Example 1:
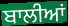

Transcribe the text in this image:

ਬਾਲੀਆਂ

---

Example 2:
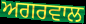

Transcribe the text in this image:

ਅਗਰਵਾਲ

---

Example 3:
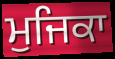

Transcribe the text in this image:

ਮੁਜਿਕਾ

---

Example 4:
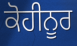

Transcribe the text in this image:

ਕੋਹੀਨੂਰ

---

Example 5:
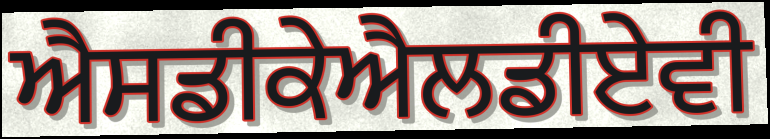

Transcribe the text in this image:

ਐਸਡੀਕੇਐਲਡੀਏਵੀ